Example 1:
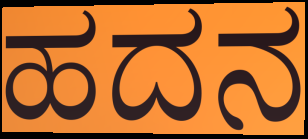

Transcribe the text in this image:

ಹದನ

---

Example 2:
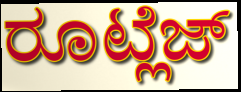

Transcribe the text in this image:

ರೂಟ್ಲೆಜ್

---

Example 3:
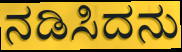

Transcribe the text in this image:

ನಡಿಸಿದನು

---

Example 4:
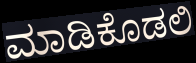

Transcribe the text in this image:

ಮಾಡಿಕೊಡಲಿ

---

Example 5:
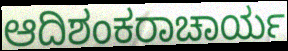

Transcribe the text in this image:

ಆದಿಶಂಕರಾಚಾರ್ಯ